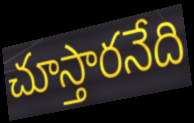
చూస్తారనేది